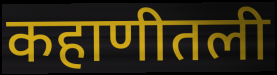
कहाणीतली